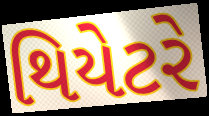
થિયેટરે